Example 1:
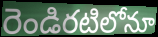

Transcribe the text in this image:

రెండిరటిలోనూ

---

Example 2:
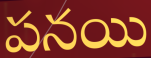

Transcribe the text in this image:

పనయి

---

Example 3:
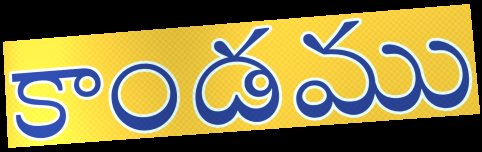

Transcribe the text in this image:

కాండము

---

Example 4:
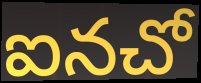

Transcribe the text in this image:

ఐనచో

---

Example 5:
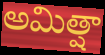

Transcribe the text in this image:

అమిత్షా